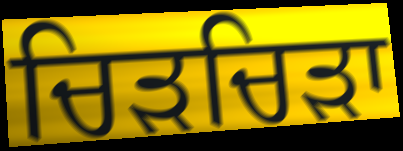
ਚਿੜਚਿੜਾ